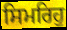
ਸਿਮਰਿਹੁ